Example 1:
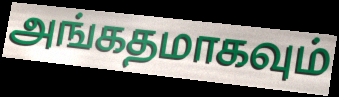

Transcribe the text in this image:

அங்கதமாகவும்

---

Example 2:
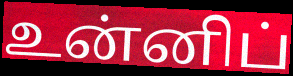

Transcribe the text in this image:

உன்னிப்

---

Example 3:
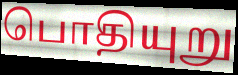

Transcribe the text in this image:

பொதியுறு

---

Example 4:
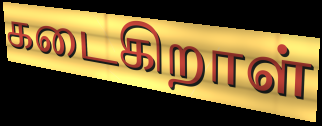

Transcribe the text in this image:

கடைகிறாள்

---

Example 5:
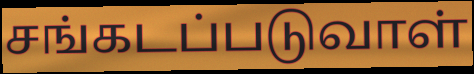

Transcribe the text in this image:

சங்கடப்படுவாள்